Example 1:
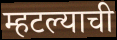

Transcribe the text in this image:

म्हटल्याची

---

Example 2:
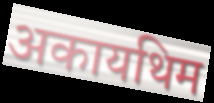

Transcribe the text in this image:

अकायथिम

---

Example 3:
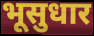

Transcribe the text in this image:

भूसुधार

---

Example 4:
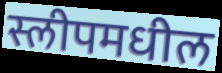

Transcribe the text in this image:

स्लीपमधील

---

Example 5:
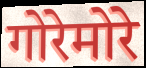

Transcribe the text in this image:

गोरेमोरे